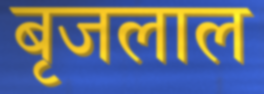
बृजलाल